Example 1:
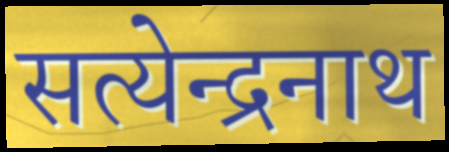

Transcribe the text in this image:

सत्येन्द्रनाथ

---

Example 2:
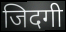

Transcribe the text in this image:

जिदगी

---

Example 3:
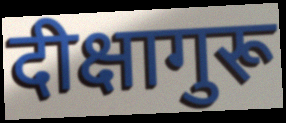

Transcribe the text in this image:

दीक्षागुरू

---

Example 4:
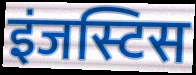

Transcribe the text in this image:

इंजस्टिस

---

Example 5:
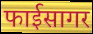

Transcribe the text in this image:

फाईसागर